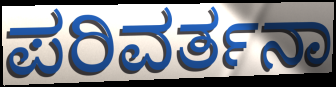
ಪರಿವರ್ತನಾ